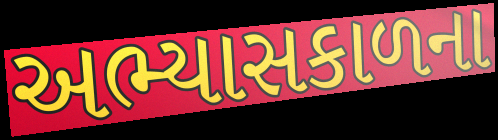
અભ્યાસકાળના